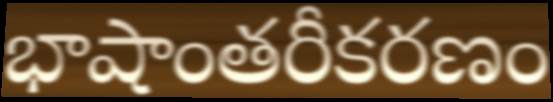
భాషాంతరీకరణం